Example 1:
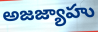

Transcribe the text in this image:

అజజ్యాహు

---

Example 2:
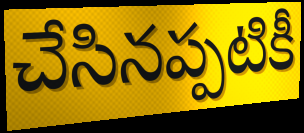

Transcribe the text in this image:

చేసినప్పటికీ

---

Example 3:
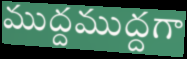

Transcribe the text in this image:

ముద్దముద్దగా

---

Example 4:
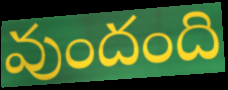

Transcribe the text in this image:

వుందంది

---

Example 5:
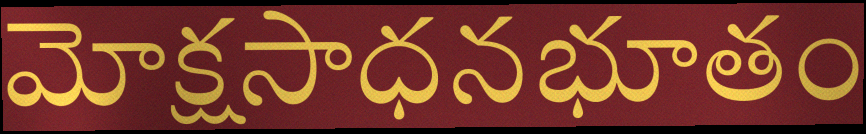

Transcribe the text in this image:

మోక్షసాధనభూతం